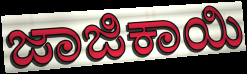
ಜಾಜಿಕಾಯಿ